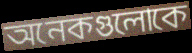
অনেকগুলোকে